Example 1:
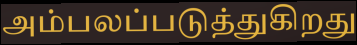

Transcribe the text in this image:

அம்பலப்படுத்துகிறது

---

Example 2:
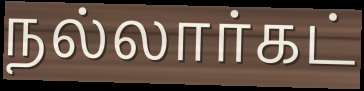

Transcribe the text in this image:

நல்லார்கட்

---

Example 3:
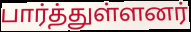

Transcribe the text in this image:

பார்த்துள்ளனர்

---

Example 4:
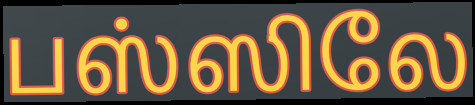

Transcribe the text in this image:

பஸ்ஸிலே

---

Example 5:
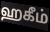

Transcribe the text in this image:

ஹகீம்